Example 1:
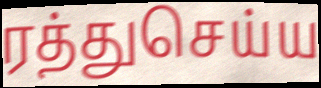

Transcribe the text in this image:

ரத்துசெய்ய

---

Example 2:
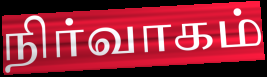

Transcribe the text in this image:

நிர்வாகம்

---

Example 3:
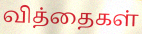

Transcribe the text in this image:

வித்தைகள்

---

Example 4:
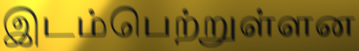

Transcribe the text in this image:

இடம்பெற்றுள்ளன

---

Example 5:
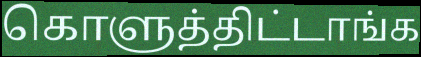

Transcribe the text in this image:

கொளுத்திட்டாங்க